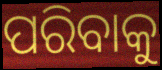
ପରିବାକୁ